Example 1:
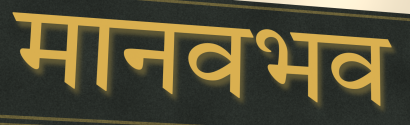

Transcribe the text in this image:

मानवभव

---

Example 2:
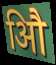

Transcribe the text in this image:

औि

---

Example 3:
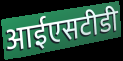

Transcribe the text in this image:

आईएसटीडी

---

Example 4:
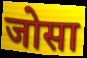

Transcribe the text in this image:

जोसा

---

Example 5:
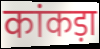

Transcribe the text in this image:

कांकड़ा